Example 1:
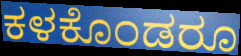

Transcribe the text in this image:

ಕಳಕೊಂಡರೂ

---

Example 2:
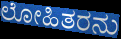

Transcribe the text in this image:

ಲೋಹಿತರನು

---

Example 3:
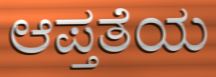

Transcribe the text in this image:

ಆಪ್ತತೆಯ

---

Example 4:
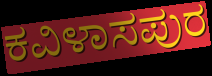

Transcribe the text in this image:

ಕವಿಳಾಸಪುರ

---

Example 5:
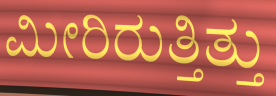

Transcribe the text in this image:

ಮೀರಿರುತ್ತಿತ್ತು